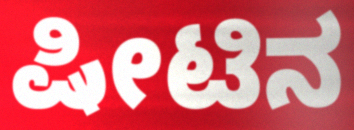
ಷೀಟಿನ